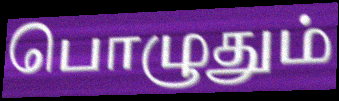
பொழுதும்